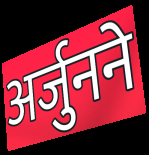
अर्जुनने